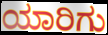
ಯಾರಿಗು